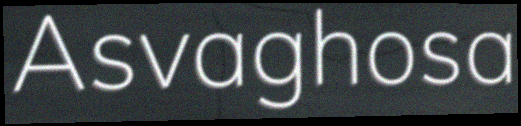
Asvaghosa